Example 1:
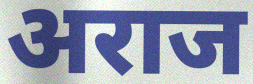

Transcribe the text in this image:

अराज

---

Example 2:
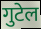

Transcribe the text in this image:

गुटेल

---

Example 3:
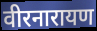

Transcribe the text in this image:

वीरनारायण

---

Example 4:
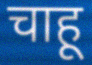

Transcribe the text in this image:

चाहू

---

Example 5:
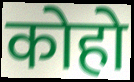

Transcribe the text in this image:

कोहो